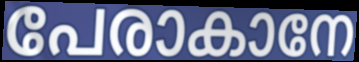
പേരാകാനേ